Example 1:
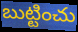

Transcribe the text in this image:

బుట్టించు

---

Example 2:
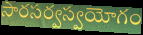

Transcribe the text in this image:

సారసర్వస్వయోగం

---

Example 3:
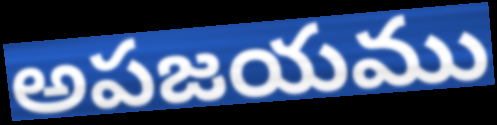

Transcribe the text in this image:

అపజయము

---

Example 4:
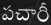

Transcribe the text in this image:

పచారీ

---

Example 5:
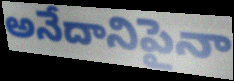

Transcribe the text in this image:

అనేదానిపైనా